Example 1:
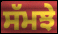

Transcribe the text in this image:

ਸੱਮਝੇ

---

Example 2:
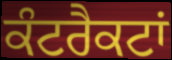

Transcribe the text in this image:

ਕੰਟਰੈਕਟਾਂ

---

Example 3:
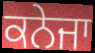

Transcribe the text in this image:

ਕਨੇਜਾ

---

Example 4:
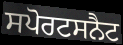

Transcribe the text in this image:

ਸਪੋਰਟਸਨੈਟ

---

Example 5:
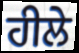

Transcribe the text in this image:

ਹੀਲੇ